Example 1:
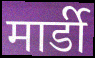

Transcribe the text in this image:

मार्डी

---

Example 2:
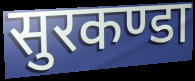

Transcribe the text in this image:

सुरकण्डा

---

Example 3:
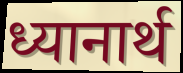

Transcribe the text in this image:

ध्यानार्थ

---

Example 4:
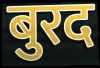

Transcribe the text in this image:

बुरद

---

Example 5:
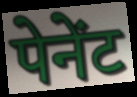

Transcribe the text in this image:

पेनेंट